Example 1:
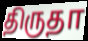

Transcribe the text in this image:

திருதா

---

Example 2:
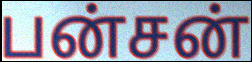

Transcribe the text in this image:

பன்சன்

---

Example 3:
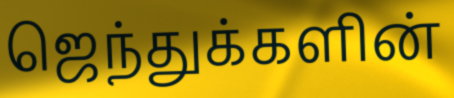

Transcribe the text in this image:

ஜெந்துக்களின்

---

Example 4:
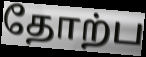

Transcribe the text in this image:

தோற்ப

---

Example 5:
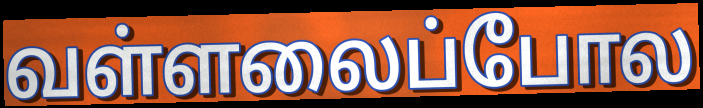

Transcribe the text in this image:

வள்ளலைப்போல